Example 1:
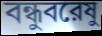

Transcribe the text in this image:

বন্ধুবরেষু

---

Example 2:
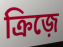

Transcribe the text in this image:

ক্রিজ়ে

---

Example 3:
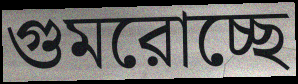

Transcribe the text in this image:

গুমরোচ্ছে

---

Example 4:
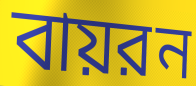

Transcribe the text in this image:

বায়রন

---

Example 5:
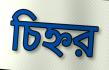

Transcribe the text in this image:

চিহ্নর